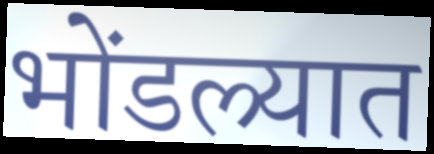
भोंडल्यात